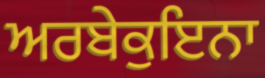
ਅਰਬੇਕੁਇਨਾ